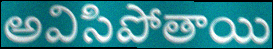
అవిసిపోతాయి